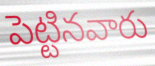
పెట్టినవారు